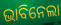
ଭାବିନେଲା